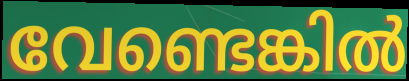
വേണ്ടെങ്കിൽ